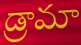
డ్రామా